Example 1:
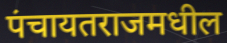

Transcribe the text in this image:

पंचायतराजमधील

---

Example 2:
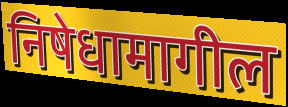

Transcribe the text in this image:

निषेधामागील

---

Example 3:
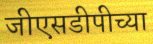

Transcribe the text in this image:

जीएसडीपीच्या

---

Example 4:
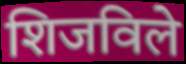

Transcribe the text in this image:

शिजविले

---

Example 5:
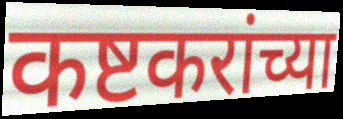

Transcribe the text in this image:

कष्टकरांच्या